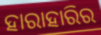
ହାରାହାରିର